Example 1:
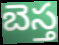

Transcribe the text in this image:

బెస్త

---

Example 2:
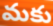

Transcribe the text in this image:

మకు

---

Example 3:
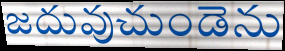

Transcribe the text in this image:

జదువుచుండెను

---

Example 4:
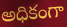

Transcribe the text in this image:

అధికంగా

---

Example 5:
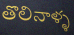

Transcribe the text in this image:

తొలినాళ్ళ